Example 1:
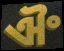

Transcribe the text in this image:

ଐଂ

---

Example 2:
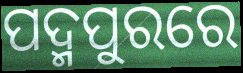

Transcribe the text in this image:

ପଦ୍ମପୁରରେ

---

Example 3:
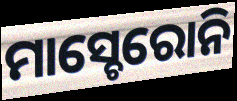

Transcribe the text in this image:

ମାସ୍ଚେରୋନି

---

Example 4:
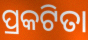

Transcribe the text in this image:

ପ୍ରକଟିତା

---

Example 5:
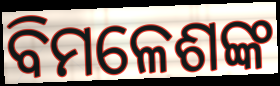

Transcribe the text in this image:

ବିମଳେଶଙ୍କ